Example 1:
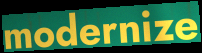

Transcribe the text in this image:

modernize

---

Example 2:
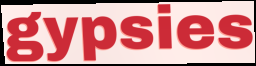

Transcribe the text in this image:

gypsies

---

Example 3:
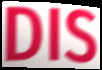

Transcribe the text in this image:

DIS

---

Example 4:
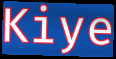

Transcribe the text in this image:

Kiye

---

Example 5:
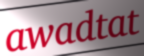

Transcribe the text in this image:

awadtat